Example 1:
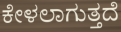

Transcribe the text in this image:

ಕೇಳಲಾಗುತ್ತದೆ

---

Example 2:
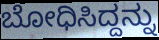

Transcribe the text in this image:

ಬೋಧಿಸಿದ್ದನ್ನು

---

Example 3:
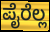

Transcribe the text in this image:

ಪೈರೆಲ್ಲ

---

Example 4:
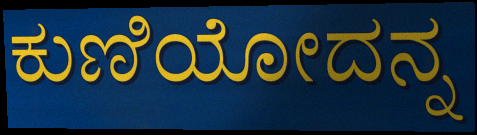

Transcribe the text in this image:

ಕುಣಿಯೋದನ್ನ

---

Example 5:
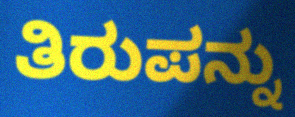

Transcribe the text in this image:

ತಿರುಪನ್ನು